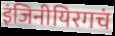
इंजिनीयिरगचं